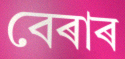
বেৰাৰ